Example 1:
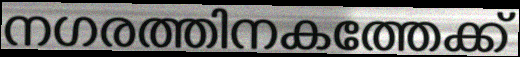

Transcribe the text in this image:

നഗരത്തിനകത്തേക്ക്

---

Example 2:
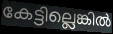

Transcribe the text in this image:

കേട്ടില്ലെങ്കിൽ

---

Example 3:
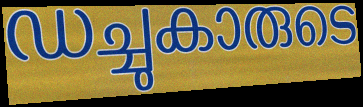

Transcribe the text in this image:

ഡച്ചുകാരുടെ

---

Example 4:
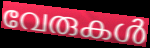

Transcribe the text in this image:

വേരുകൾ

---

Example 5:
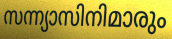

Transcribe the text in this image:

സന്ന്യാസിനിമാരും